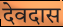
देवदास